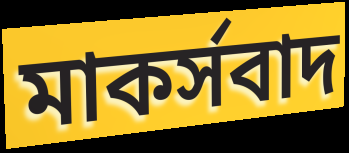
মাকর্সবাদ